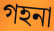
গহনা